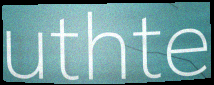
uthte